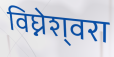
विघ्नेश्वरा